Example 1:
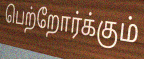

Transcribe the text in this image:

பெற்றோர்க்கும்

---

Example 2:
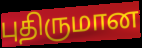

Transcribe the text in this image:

புதிருமான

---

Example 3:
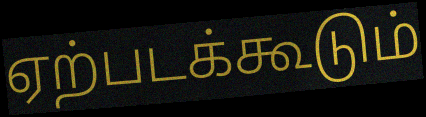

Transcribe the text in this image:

ஏற்படக்கூடும்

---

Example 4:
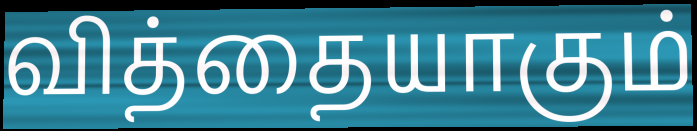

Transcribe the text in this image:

வித்தையாகும்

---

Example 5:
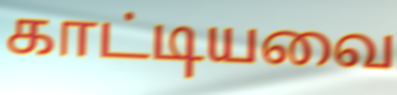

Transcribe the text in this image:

காட்டியவை